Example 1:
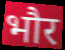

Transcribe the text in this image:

भौर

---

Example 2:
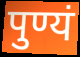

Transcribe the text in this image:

पुण्यं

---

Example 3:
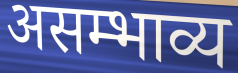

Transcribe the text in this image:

असम्भाव्य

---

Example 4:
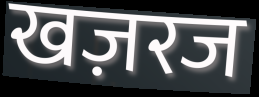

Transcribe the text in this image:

खज़रज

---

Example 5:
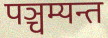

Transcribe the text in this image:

पञ्चम्यन्त